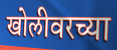
खोलीवरच्या